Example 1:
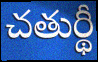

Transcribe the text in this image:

చతుర్థీ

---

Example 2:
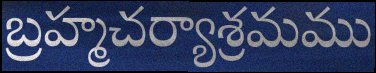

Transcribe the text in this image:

బ్రహ్మచర్యాశ్రమము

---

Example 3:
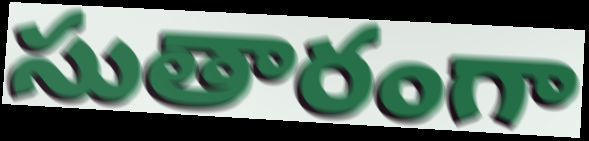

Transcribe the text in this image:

సుతారంగా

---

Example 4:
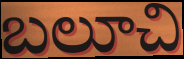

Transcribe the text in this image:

బలూచి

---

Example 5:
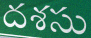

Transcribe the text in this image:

దశసు